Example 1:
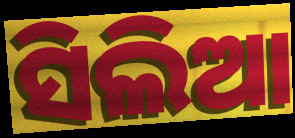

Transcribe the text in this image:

ସିଲିଆ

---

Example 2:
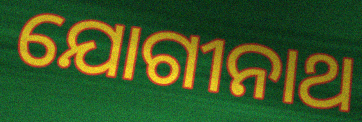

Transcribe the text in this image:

ଯୋଗୀନାଥ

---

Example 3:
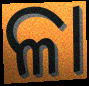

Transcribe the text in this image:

ଳା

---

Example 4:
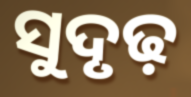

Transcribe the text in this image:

ସୁଦୃଢ଼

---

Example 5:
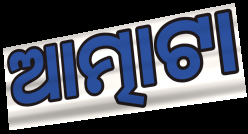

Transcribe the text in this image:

ଆତ୍ମାଟା